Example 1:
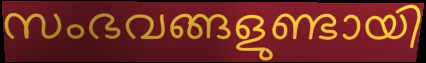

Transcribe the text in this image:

സംഭവങ്ങളുണ്ടായി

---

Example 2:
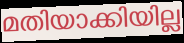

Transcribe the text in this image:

മതിയാക്കിയില്ല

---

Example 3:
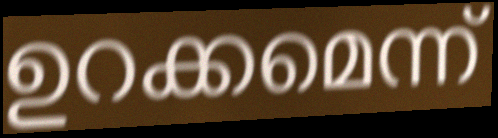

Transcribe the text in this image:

ഉറക്കമെന്ന്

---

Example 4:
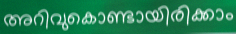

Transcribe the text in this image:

അറിവുകൊണ്ടായിരിക്കാം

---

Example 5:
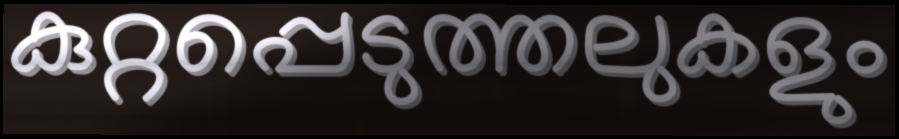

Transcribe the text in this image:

കുറ്റപ്പെടുത്തലുകളും